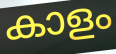
കാളം